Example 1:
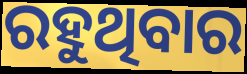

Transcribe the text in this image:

ରହୁଥିବାର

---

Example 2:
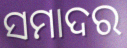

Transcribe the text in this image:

ସମାଦର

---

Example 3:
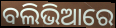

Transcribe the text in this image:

ବଲିଭିଆରେ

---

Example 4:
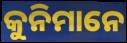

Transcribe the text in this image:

କୁନିମାନେ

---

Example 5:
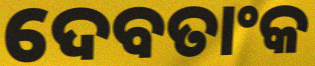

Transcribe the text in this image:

ଦେବତାଂକ